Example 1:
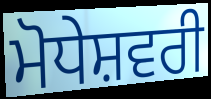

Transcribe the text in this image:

ਮੋਧੇਸ਼ਵਰੀ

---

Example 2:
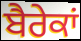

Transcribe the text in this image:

ਬੈਰੇਕਾਂ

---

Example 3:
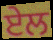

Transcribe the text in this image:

ਏਲ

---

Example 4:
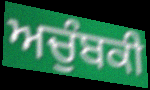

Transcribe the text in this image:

ਅਚੁੰਬਕੀ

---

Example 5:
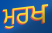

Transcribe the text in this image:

ਮੁਰਖ